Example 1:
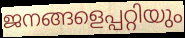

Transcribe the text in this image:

ജനങ്ങളെപ്പറ്റിയും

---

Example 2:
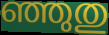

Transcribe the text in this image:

ഞ്ഞുതു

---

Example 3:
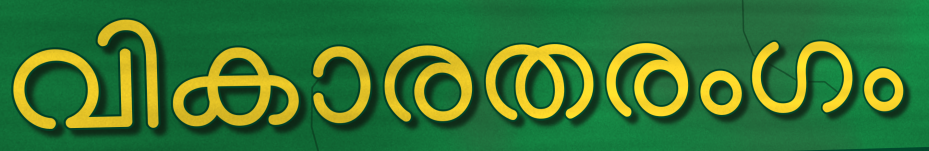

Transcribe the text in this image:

വികാരതരംഗം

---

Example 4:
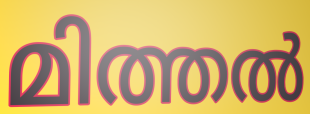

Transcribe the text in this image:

മിത്തൽ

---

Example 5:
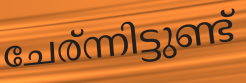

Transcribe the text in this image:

ചേര്ന്നിട്ടുണ്ട്